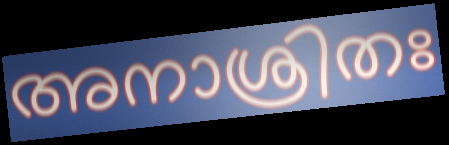
അനാശ്രിതഃ